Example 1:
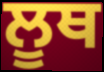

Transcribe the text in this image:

ਲੂਥ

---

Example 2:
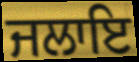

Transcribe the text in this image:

ਜਲਾਇ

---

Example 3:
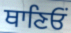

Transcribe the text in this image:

ਥਾਣਿਓਂ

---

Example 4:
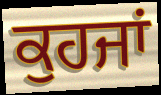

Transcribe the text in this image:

ਕੁਹਜਾਂ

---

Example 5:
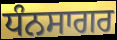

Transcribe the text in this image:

ਧੰਨਸਾਗਰ